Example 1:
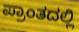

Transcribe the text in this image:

ಪ್ರಾಂತದಲ್ಲಿ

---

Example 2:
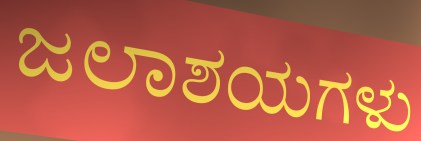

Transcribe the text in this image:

ಜಲಾಶಯಗಳು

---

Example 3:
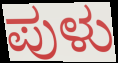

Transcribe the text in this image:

ಪುಳು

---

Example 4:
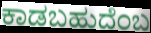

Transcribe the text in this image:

ಕಾಡಬಹುದೆಂಬ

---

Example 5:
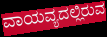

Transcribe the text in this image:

ವಾಯವ್ಯದಲ್ಲಿರುವ